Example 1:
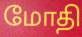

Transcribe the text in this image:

மோதி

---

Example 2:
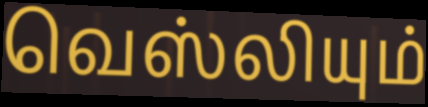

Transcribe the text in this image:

வெஸ்லியும்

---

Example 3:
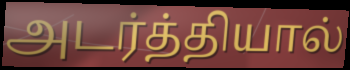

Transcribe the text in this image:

அடர்த்தியால்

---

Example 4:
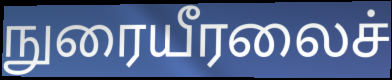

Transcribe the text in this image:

நுரையீரலைச்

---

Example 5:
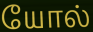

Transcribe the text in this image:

யோல்